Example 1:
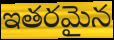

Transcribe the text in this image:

ఇతరమైన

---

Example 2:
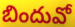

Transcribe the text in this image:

బిందువో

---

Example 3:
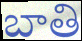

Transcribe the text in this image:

బాతి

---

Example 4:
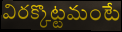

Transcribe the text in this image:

విరక్కొట్టమంటే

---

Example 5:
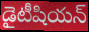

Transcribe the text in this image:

డైటీషియన్